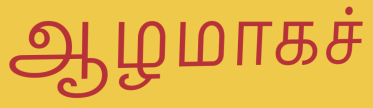
ஆழமாகச்